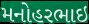
મનોહરભાઇ